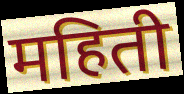
महिती